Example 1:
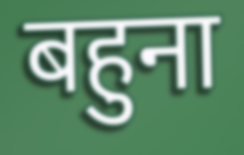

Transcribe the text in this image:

बहुना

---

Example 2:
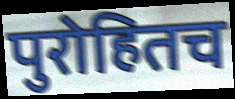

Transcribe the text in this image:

पुरोहितच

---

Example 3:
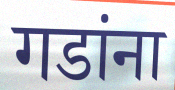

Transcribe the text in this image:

गडांना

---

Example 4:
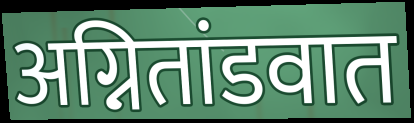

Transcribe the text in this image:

अग्नितांडवात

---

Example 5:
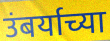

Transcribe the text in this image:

उंबर्याच्या